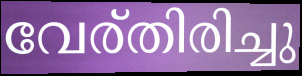
വേര്തിരിച്ചു